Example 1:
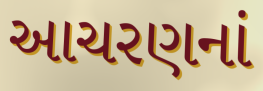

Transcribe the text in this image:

આચરણનાં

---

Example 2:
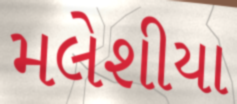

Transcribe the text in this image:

મલેશીયા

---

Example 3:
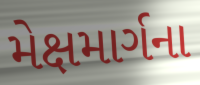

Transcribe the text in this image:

મેક્ષમાર્ગના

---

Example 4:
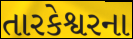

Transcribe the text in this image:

તારકેશ્વરના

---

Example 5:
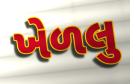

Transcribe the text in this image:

ખેળલુ